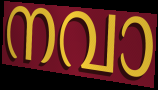
നവാ